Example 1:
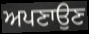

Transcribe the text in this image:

ਅਪਣਾਉਣ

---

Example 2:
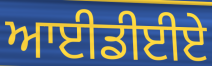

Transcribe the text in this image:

ਆਈਡੀਈਏ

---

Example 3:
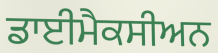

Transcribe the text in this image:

ਡਾਈਮੈਕਸੀਅਨ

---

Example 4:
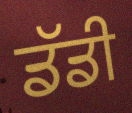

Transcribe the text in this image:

ਡੱਡੀ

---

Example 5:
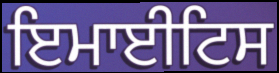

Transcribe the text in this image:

ਇਮਾਈਟਿਸ